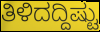
ತಿಳಿದದ್ದಿಷ್ಟು